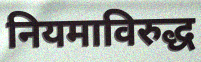
नियमाविरुद्ध